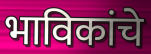
भाविकांचे